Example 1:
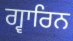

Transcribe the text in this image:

ਗ੍ਵਾਰਿਨ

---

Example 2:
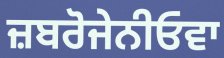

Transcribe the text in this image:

ਜ਼ਬਰੋਜੇਨੀਓਵਾ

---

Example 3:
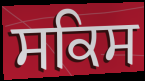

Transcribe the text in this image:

ਸਕਿਸ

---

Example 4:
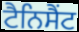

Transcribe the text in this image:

ਟੈਨਿਸੈਂਟ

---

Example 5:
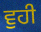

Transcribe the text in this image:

ਵੁਹੀ